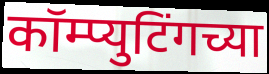
कॉम्प्युटिंगच्या